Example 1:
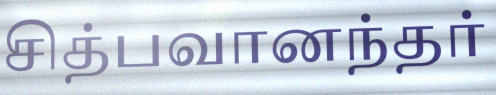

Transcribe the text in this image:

சித்பவானந்தர்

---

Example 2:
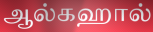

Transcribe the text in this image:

ஆல்கஹால்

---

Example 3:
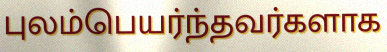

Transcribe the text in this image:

புலம்பெயர்ந்தவர்களாக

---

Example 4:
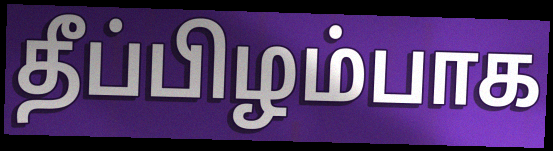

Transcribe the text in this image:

தீப்பிழம்பாக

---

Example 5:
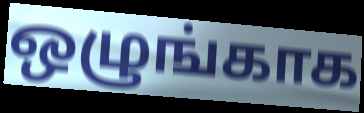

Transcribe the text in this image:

ஒழுங்காக